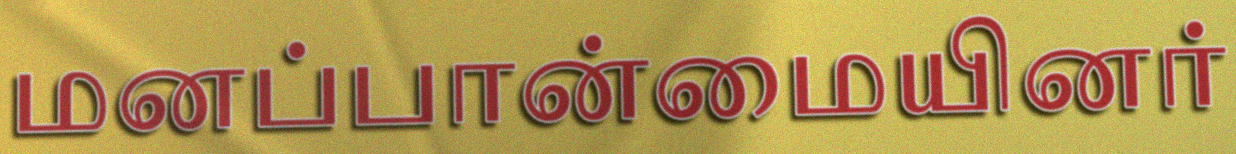
மனப்பான்மையினர்